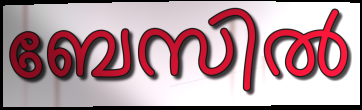
ബേസിൽ